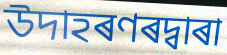
উদাহৰণৰদ্বাৰা